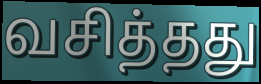
வசித்தது